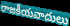
రాజకీయవాదులు